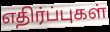
எதிர்ப்புகள்